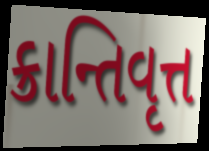
ક્રાન્તિવૃત્ત